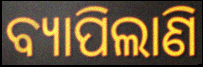
ବ୍ୟାପିଲାଣି